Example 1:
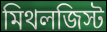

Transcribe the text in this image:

মিথলজিস্ট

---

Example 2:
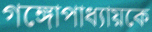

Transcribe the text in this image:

গঙ্গোপাধ্যায়কে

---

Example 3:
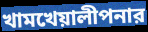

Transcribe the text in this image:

খামখেয়ালীপনার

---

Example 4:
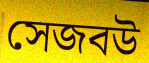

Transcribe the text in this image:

সেজবউ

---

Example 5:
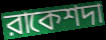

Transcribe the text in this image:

রাকেশদা